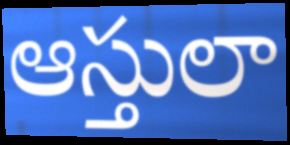
ఆస్తులా